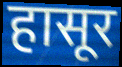
हासूर